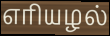
எரியழல்